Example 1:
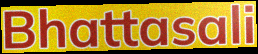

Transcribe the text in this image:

Bhattasali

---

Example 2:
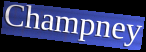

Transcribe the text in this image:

Champney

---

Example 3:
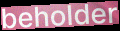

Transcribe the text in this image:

beholder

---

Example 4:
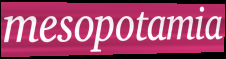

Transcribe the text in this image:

mesopotamia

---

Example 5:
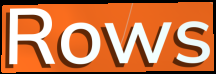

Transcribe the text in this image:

Rows